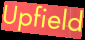
Upfield